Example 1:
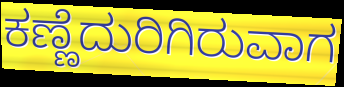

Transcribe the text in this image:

ಕಣ್ಣೆದುರಿಗಿರುವಾಗ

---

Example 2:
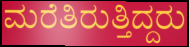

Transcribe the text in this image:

ಮರೆತಿರುತ್ತಿದ್ದರು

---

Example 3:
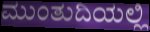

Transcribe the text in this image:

ಮುಂತುದಿಯಲ್ಲಿ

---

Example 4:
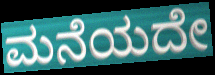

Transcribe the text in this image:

ಮನೆಯದೇ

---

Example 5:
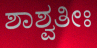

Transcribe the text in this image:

ಶಾಶ್ವತೀಃ